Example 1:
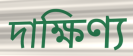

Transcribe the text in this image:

দাক্ষিণ্য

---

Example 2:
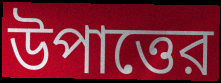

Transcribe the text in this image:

উপাত্তের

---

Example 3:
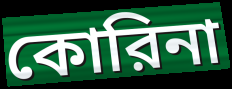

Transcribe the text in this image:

কোরিনা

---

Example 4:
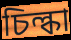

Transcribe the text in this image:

চিল্কা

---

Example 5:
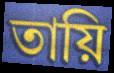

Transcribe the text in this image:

তায়ি